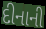
દીનાની